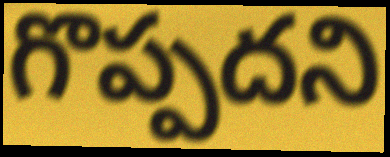
గొప్పదని